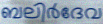
ബലിർദേവ